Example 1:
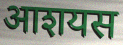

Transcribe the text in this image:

आशयस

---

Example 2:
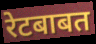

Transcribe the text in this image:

रेटबाबत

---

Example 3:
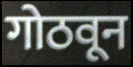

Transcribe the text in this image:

गोठवून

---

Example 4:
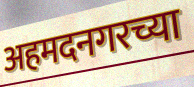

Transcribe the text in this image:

अहमदनगरच्या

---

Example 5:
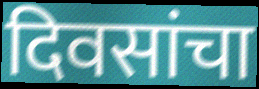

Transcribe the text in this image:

दिवसांचा